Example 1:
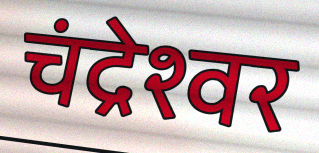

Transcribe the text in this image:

चंद्रेश्वर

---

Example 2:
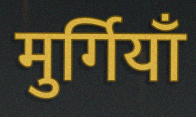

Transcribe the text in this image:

मुर्गियाँ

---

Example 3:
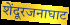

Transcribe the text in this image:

शेंदूरजनाघाट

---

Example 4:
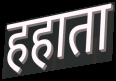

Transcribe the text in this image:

हहाता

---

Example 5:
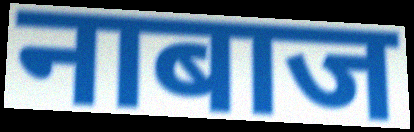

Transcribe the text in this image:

नाबाज